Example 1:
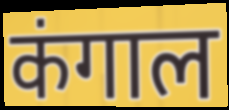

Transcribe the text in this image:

कंगाल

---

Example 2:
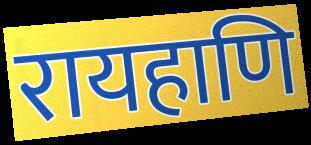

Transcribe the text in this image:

रायहाणि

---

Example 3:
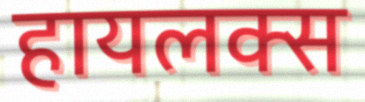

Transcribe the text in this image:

हायलक्स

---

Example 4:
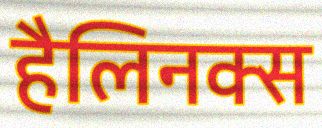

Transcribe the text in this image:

हैलिनक्स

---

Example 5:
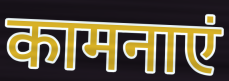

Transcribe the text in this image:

कामनाएं